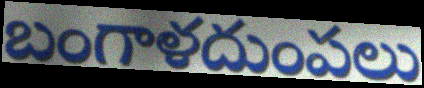
బంగాళదుంపలు